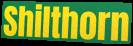
Shilthorn